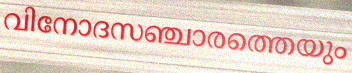
വിനോദസഞ്ചാരത്തെയും